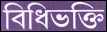
বিধিভক্তি